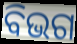
ବିଭଗ